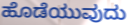
ಹೊಡೆಯುವುದು